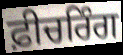
ਫ਼ੀਚਰਿੰਗ